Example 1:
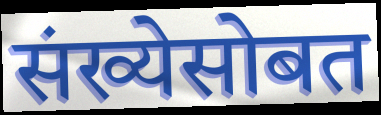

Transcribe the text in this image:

संख्येसोबत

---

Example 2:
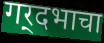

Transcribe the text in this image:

गर्दभाचा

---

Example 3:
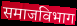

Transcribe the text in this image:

समाजविभाग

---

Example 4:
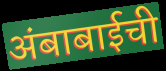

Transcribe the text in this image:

अंबाबाईची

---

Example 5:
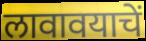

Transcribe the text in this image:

लावावयाचें